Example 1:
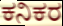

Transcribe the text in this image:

ಕನಿಕರ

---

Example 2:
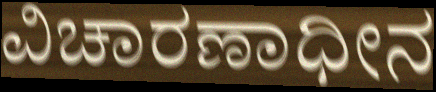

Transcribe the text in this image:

ವಿಚಾರಣಾಧೀನ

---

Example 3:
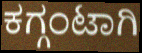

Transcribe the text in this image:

ಕಗ್ಗಂಟಾಗಿ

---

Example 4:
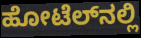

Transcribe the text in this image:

ಹೋಟೆಲ್‌ನಲ್ಲಿ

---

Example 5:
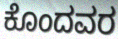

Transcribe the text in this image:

ಕೊಂದವರ